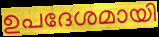
ഉപദേശമായി